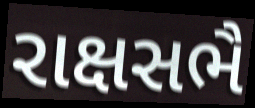
રાક્ષસભૈ